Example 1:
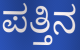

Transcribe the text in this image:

ಪತ್ತಿನ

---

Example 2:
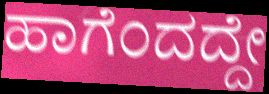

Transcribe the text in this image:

ಹಾಗೆಂದದ್ದೇ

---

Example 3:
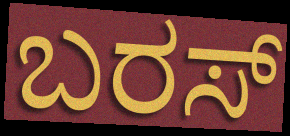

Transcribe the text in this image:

ಬರಸ್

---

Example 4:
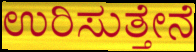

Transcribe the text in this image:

ಉರಿಸುತ್ತೇನೆ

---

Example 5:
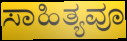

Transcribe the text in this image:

ಸಾಹಿತ್ಯವೂ